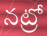
నట్రో